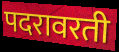
पदरावरती